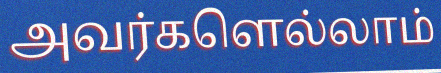
அவர்களெல்லாம்